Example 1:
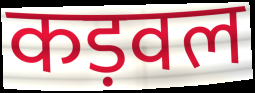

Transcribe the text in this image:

कड़वल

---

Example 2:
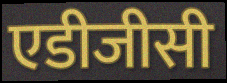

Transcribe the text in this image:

एडीजीसी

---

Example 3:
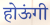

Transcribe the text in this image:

होऊंगी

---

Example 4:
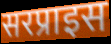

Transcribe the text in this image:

सरप्राइस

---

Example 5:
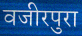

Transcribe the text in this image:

वजीरपुरा